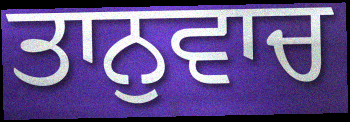
ਤਾਨੁਵਾਚ